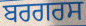
ਬਰਗਰਸ